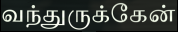
வந்துருக்கேன்